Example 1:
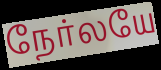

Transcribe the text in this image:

நேர்லயே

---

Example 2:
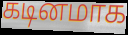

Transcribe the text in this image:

கடினமாக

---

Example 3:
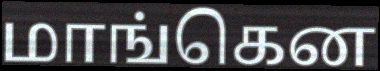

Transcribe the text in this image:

மாங்கென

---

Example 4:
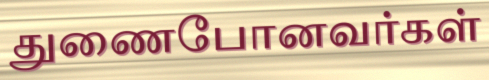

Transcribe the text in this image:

துணைபோனவர்கள்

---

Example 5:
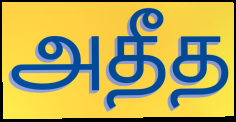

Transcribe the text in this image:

அதீத